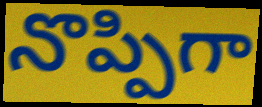
నొప్పిగా